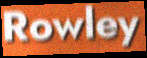
Rowley